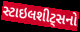
સ્ટાઇલશીટ્સનો